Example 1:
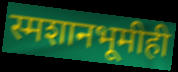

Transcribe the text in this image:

स्मशानभूमीही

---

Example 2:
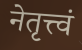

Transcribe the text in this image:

नेतृत्त्वं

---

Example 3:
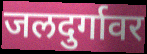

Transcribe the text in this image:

जलदुर्गावर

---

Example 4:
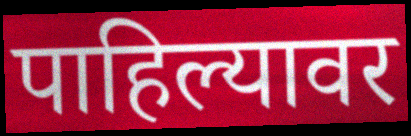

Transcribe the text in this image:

पाहिल्यावर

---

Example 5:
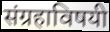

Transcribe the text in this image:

संग्रहाविषयी